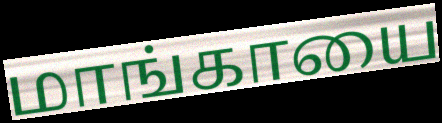
மாங்காயை